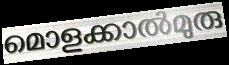
മൊളക്കാൽമുരു